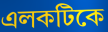
এলকটিকে